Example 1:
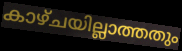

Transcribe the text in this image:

കാഴ്ചയില്ലാത്തതും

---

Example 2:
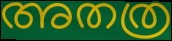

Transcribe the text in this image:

അതത്ര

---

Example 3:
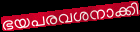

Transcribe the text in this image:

ഭയപരവശനാക്കി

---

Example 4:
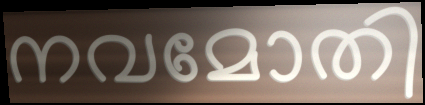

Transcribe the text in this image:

നവമോതി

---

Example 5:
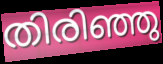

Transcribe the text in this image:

തിരിഞ്ഞു